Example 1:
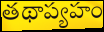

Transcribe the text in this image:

తథాప్యహం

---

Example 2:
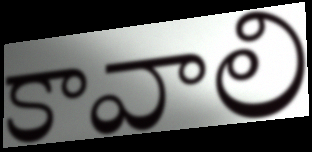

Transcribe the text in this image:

కావాలి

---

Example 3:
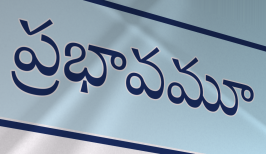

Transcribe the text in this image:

ప్రభావమూ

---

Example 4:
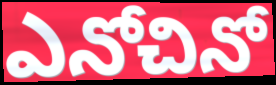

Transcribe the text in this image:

ఎనోచినో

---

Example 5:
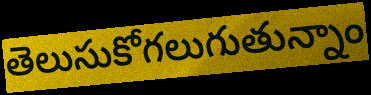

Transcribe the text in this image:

తెలుసుకోగలుగుతున్నాం